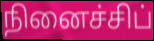
நினைச்சிப்